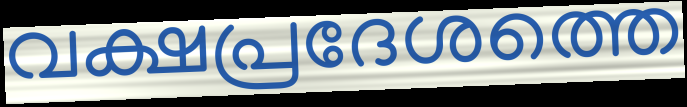
വക്ഷപ്രദേശത്തെ